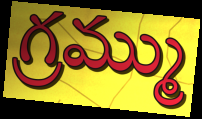
గ్రమ్ము